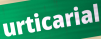
urticarial